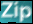
Zip